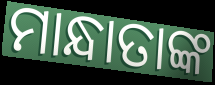
ମାନ୍ଧାତାଙ୍କ